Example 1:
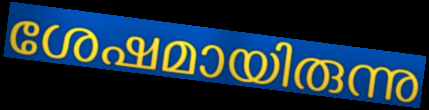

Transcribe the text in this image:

ശേഷമായിരുന്നു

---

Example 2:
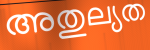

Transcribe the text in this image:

അതുല്യത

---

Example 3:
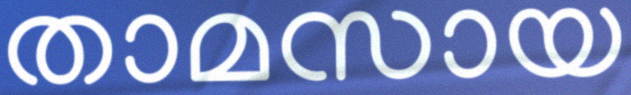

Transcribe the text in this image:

താമസായ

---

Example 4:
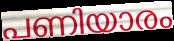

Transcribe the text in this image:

പണിയാരം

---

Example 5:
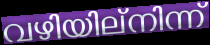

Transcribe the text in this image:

വഴിയില്നിന്ന്